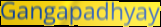
Gangapadhyay